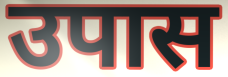
उपास